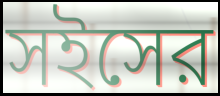
সইসের